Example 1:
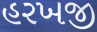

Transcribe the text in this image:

હરખજી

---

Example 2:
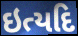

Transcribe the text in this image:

ઇત્યદિ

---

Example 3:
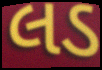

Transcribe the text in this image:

લડ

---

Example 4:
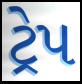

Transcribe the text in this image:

ટ્રેપ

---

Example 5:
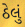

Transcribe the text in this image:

ઠેલું